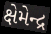
ક્ષેમેન્દ્ર